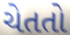
ચેતતો